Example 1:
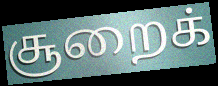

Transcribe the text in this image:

சூறைக்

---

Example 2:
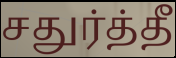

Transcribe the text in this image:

சதுர்த்தீ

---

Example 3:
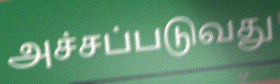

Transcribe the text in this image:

அச்சப்படுவது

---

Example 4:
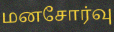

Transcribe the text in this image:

மனசோர்வு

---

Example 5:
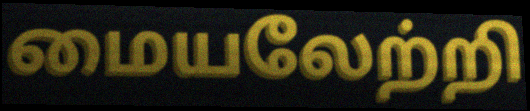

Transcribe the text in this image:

மையலேற்றி